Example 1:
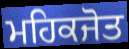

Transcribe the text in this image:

ਮਹਿਕਜੋਤ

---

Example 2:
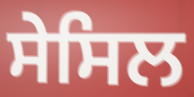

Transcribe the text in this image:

ਸੇਸਿਲ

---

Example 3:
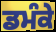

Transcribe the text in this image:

ਡਮੰਕੇ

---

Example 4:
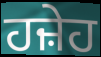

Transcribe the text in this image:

ਹਜ਼ੇਹ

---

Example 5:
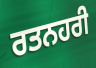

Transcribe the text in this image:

ਰਤਨਹਰੀ